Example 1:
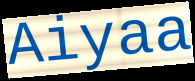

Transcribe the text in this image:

Aiyaa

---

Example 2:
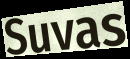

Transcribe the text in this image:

Suvas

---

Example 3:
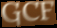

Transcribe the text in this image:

GCF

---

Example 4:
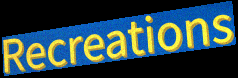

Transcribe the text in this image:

Recreations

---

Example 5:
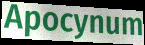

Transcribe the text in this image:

Apocynum